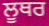
ਲੂਥਰ